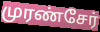
முரண்சேர்